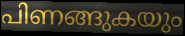
പിണങ്ങുകയും